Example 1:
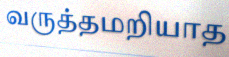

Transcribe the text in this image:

வருத்தமறியாத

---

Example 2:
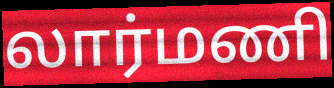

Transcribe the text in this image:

லார்மணி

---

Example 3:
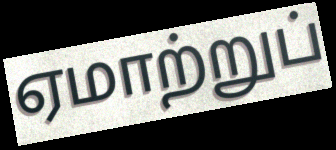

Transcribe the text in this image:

ஏமாற்றுப்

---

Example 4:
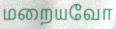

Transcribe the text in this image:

மறையவோ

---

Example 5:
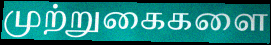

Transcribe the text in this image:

முற்றுகைகளை